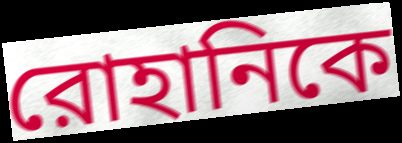
রোহানিকে